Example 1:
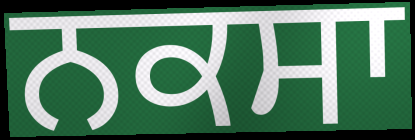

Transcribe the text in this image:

ਨਕਸਾ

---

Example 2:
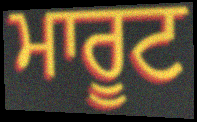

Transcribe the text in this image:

ਮਾਰੂਟ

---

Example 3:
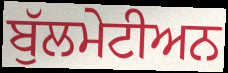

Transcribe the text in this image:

ਬੁੱਲਮੇਟੀਅਨ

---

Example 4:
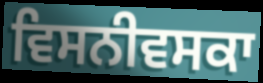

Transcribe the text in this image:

ਵਿਸਨੀਵਸਕਾ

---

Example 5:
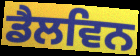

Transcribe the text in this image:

ਡੈਲਵਿਨ